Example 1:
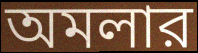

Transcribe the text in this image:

অমলার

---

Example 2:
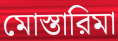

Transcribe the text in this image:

মোস্তারিমা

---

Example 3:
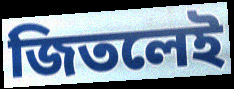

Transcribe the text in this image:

জিতলেই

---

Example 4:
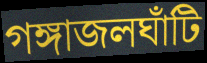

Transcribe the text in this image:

গঙ্গাজলঘাঁটি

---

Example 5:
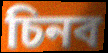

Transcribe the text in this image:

চিনব